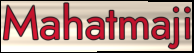
Mahatmaji